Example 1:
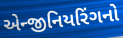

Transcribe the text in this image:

એન્જીનિયરિંગનો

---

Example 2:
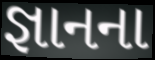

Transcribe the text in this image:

જ્ઞાનના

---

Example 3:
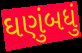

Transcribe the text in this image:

ઘણુંબધું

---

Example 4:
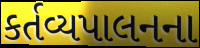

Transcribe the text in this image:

કર્તવ્યપાલનના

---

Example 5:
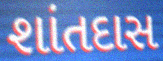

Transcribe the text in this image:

શાંતદાસ